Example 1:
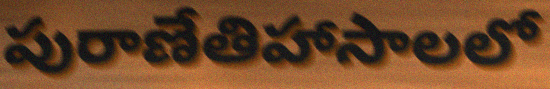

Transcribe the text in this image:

పురాణేతిహాసాలలో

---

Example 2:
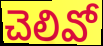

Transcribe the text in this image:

చెలివో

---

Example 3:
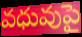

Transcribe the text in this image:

వధువుపై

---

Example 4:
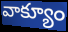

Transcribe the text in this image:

వాక్యూం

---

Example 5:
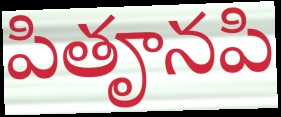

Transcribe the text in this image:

పితౄనపి